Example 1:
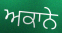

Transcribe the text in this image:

ਅਕਾਨੇ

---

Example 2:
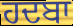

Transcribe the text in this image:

ਹਦਬਾ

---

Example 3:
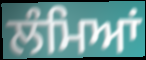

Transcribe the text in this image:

ਲੰਮਿਆਂ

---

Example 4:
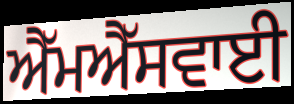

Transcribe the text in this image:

ਐੱਮਐੱਸਵਾਈ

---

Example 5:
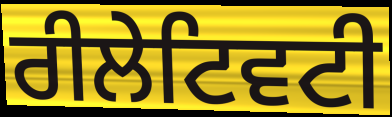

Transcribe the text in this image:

ਰੀਲੇਟਿਵਟੀ